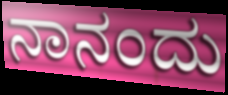
ನಾನಂದು